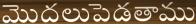
మొదలుపెడతాము